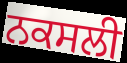
ਨਕਸਲੀ